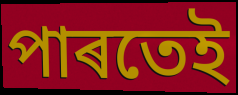
পাৰতেই